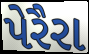
પેરૈરા